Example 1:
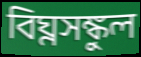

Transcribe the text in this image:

বিঘ্নসঙ্কুল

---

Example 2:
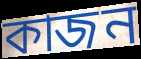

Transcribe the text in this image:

কাজন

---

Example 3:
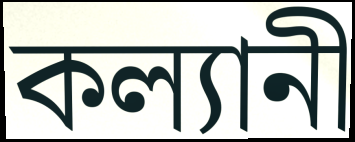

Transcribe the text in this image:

কল্যানী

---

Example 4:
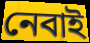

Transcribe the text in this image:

নেবাই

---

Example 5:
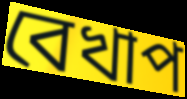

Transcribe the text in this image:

বেখাপ